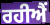
ਰਹੀਐਂ